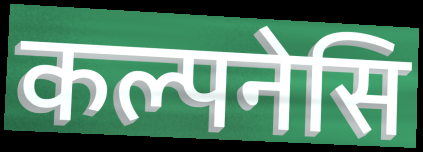
कल्पनेसि